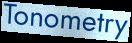
Tonometry